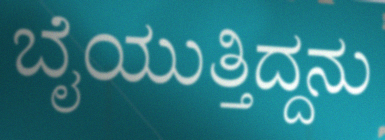
ಬೈಯುತ್ತಿದ್ದನು